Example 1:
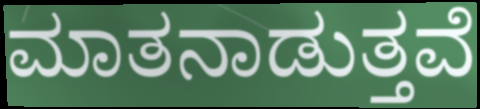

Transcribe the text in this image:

ಮಾತನಾಡುತ್ತವೆ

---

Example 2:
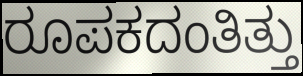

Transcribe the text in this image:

ರೂಪಕದಂತಿತ್ತು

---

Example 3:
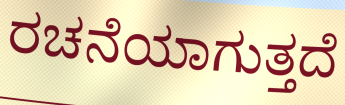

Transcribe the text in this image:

ರಚನೆಯಾಗುತ್ತದೆ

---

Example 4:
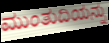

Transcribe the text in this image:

ಮುಂತುದಿಯನ್ನು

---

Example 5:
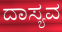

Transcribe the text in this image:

ದಾಸ್ಯವ